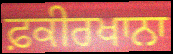
ਫ਼ਕੀਰਖਾਨਾ